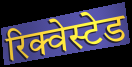
रिक्वेस्टेड